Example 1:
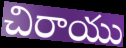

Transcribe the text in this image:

చిరాయు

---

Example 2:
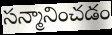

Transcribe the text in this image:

సన్మానించడం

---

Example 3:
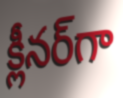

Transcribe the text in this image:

క్లీనర్‌గా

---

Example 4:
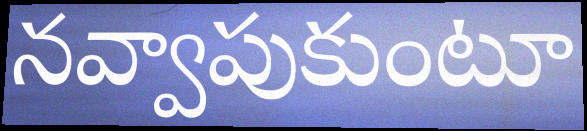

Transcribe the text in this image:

నవ్వాపుకుంటూ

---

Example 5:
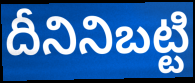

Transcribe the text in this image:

దీనినిబట్టి